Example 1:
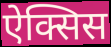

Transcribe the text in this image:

ऐक्सिस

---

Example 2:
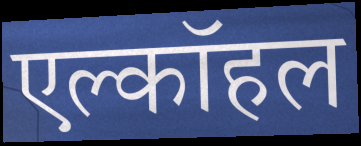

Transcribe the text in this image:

एल्कॉहल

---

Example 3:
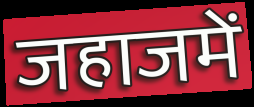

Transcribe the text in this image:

जहाजमें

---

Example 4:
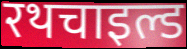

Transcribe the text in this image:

रथचाइल्ड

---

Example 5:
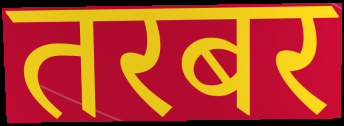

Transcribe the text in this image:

तरबर